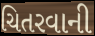
ચિતરવાની